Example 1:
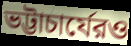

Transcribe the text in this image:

ভট্টাচার্যেরও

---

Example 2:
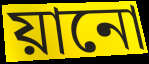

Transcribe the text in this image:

য়ানো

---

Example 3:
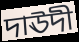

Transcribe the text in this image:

দাঊদী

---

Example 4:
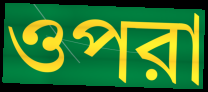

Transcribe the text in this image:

ওপরা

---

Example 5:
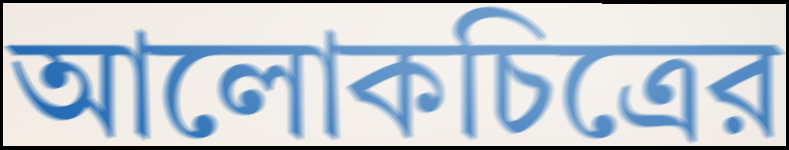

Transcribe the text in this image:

আলোকচিত্রের